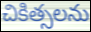
చికిత్సలను